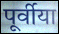
पूर्वीया